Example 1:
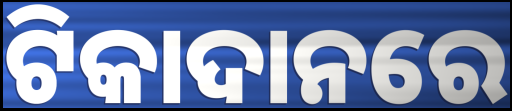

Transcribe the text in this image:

ଟିକାଦାନରେ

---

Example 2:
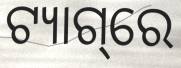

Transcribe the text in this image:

ଟ୍ୟାଗ୍‌ରେ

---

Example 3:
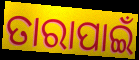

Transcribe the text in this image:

ତାରାପାଇଁ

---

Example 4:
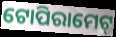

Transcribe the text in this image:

ଟୋପିରାମେଟ୍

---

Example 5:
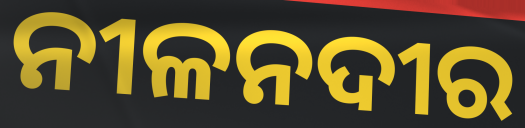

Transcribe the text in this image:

ନୀଳନଦୀର